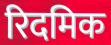
रिदमिक